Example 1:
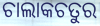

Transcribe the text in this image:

ଚାଲାକଚତୁର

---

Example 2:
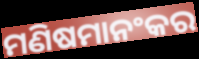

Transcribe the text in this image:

ମଣିଷମାନଂକର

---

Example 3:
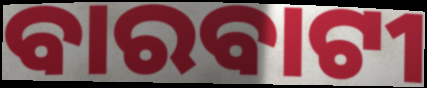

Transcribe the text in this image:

ବାରବାଟୀ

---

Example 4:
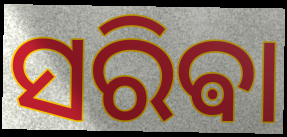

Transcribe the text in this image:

ସରିଵା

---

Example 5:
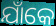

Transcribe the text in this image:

ଯାଁକେ